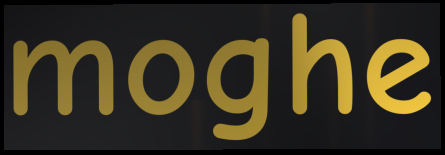
moghe